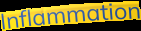
Inflammation